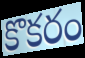
కొకరం